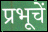
प्रभूचें